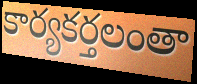
కార్యకర్తలంతా